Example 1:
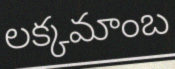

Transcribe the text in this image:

లక్కమాంబ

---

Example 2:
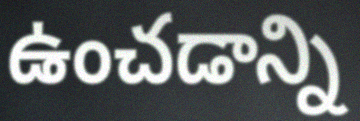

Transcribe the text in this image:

ఉంచడాన్ని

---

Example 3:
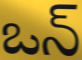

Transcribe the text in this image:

ఒన్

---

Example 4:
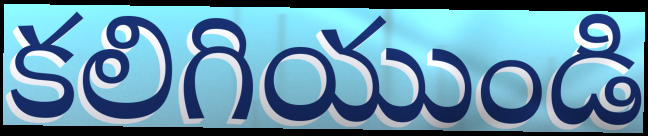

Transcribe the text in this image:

కలిగియుండి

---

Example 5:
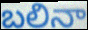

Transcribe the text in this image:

బలినా